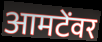
आमटेंवर